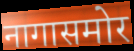
नागासमोर